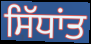
ਸਿੱਧਾਂਤ